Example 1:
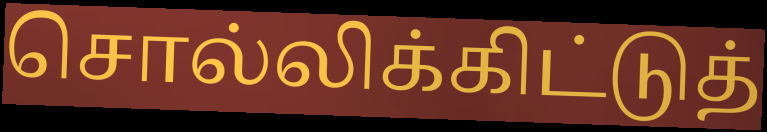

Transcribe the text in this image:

சொல்லிக்கிட்டுத்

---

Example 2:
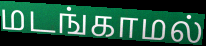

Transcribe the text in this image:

மடங்காமல்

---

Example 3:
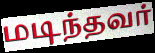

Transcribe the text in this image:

மடிந்தவர்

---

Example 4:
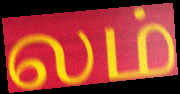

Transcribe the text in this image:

லம்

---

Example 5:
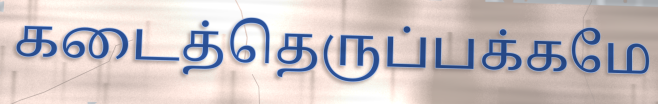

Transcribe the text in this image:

கடைத்தெருப்பக்கமே